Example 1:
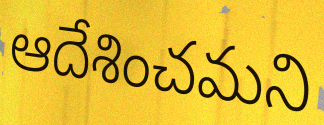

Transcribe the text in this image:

ఆదేశించమని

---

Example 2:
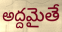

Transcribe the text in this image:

అద్దమైతే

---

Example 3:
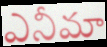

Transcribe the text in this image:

ఎనీమా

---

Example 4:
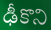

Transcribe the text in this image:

ఢీకొని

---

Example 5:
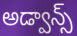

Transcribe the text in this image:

అడ్వాన్స్